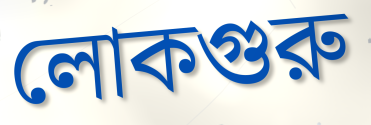
লোকগুরু